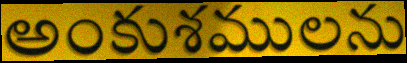
అంకుశములను